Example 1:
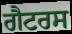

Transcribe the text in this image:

ਗੈਟਰਸ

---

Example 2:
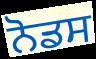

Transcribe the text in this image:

ਨੋਡਸ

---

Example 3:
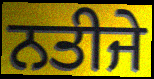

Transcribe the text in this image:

ਨਤੀਜੇ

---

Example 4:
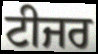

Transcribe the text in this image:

ਟੀਜਰ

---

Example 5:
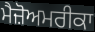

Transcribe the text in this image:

ਮੈਜ਼ੋਅਮਰੀਕਾ